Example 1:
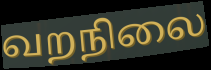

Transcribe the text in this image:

வறநிலை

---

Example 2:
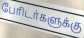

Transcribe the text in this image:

பேரிடர்களுக்கு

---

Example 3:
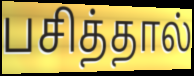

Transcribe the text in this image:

பசித்தால்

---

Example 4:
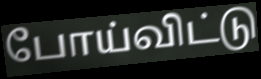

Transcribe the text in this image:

போய்விட்டு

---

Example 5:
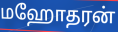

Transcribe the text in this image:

மஹோதரன்